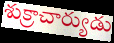
శుక్రాచార్యుడు